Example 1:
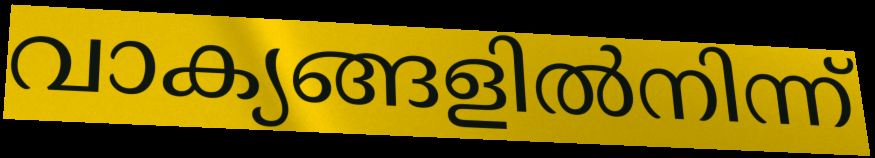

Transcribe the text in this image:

വാക്യങ്ങളിൽനിന്ന്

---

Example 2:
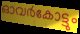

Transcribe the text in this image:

ഓവർകോട്ടും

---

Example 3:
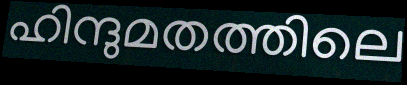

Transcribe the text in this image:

ഹിന്ദുമതത്തിലെ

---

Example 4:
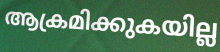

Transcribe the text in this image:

ആക്രമിക്കുകയില്ല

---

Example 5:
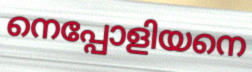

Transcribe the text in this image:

നെപ്പോളിയനെ